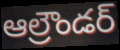
ఆల్రౌండర్